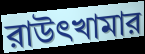
রাউৎখামার